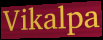
Vikalpa